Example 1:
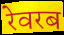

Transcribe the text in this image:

रेवरब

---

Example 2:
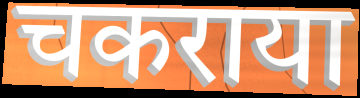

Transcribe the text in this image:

चकराया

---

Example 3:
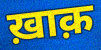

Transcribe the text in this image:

ख़ाक़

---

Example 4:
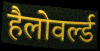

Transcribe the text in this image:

हैलोवर्ल्ड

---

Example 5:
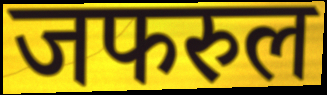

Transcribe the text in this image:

जफरुल